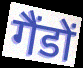
गैंडों